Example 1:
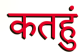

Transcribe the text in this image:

कतहुं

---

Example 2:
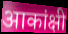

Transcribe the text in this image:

आकांक्षी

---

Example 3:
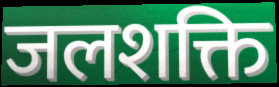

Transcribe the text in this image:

जलशक्ति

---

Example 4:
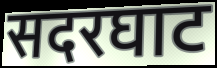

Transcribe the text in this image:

सदरघाट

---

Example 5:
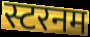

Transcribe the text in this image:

स्टरनम